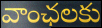
వాంఛలకు